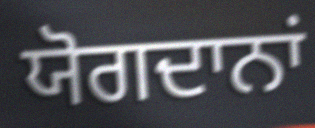
ਯੋਗਦਾਨਾਂ